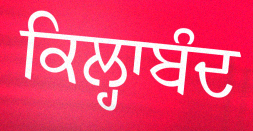
ਕਿਲ੍ਹਾਬੰਦ